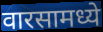
वारसामध्ये